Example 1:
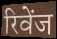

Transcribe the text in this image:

रिवेंज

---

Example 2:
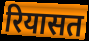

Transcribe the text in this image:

रियासत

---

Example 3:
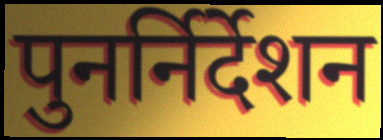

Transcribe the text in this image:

पुनर्निर्देशन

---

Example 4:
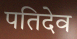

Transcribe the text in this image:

पतिदेव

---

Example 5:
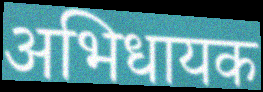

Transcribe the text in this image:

अभिधायक